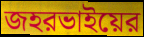
জহরভাইয়ের